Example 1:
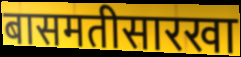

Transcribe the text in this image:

बासमतीसारखा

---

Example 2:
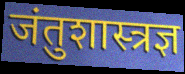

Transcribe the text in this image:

जंतुशास्त्रज्ञ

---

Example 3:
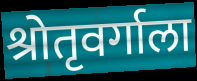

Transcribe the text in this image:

श्रोतृवर्गाला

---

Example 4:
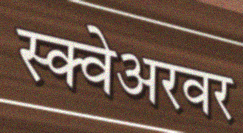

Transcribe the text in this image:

स्क्वेअरवर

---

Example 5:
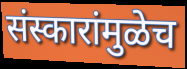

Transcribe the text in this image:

संस्कारांमुळेच